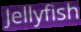
Jellyfish